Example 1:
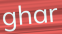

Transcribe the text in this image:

ghar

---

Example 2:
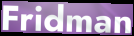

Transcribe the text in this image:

Fridman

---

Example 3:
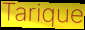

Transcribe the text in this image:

Tarique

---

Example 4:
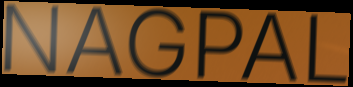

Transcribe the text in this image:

NAGPAL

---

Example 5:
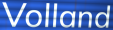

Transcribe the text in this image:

Volland